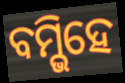
ବମ୍ଭିହେ